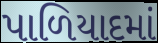
પાળિયાદમાં